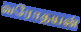
வரோதயன்